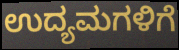
ಉದ್ಯಮಗಳಿಗೆ